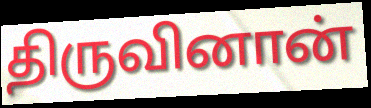
திருவினான்